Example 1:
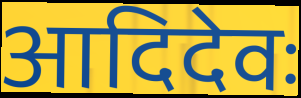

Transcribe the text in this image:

आदिदेवः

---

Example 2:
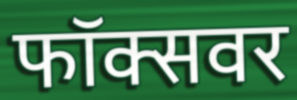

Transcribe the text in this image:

फॉक्सवर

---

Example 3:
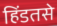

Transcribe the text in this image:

हिंडतसे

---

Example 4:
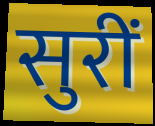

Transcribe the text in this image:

सुरीं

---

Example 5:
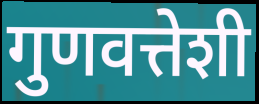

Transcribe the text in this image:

गुणवत्तेशी